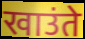
खाउंते